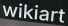
wikiart